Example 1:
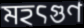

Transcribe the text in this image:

মহৎগুণ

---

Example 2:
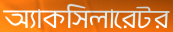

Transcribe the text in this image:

অ্যাকসিলারেটর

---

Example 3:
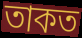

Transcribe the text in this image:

তাকত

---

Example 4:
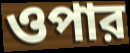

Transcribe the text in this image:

ওপার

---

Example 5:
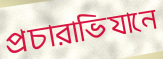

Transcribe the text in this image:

প্রচারাভিযানে